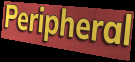
Peripheral